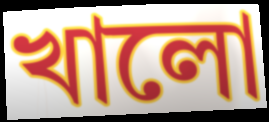
খালো